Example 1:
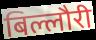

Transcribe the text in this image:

बिल्लौरी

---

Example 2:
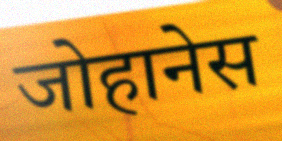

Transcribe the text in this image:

जोहानेस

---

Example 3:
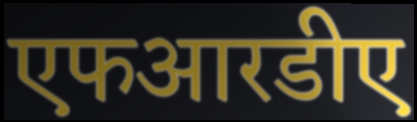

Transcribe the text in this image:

एफआरडीए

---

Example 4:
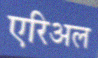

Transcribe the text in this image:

एरिअल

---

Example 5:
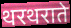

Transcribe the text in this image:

थरथराते